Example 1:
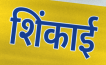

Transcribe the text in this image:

शिंकाई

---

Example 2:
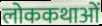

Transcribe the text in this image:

लोककथाओं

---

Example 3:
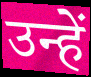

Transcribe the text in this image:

उन्‍हें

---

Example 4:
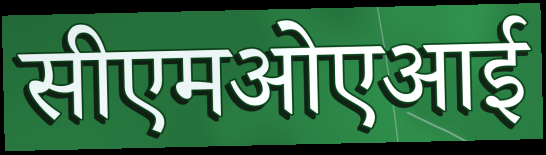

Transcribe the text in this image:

सीएमओएआई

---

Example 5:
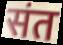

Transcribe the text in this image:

संत